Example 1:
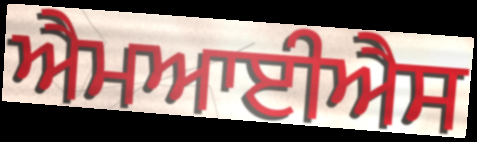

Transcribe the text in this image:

ਐਮਆਈਐਸ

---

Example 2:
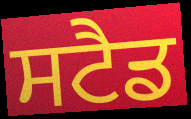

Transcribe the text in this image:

ਸਟੈਡ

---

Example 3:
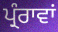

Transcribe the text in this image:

ਪ੍ਰੰਰਾਵਾਂ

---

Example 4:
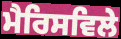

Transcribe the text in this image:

ਮੈਰਿਸਵਿਲੇ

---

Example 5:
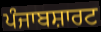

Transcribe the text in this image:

ਪੰਜਾਬਸ਼ਾਰਟ